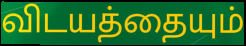
விடயத்தையும்